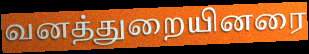
வனத்துறையினரை